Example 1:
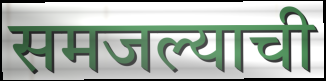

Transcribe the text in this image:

समजल्याची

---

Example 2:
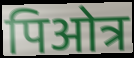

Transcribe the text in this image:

पिओत्र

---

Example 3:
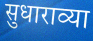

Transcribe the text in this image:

सुधाराव्या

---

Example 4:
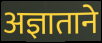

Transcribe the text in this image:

अज्ञाताने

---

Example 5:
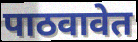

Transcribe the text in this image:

पाठवावेत